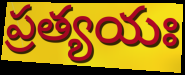
ప్రత్యయః